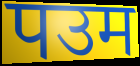
पउम